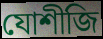
যোশীজি